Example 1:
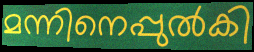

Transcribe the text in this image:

മന്നിനെപ്പുൽകി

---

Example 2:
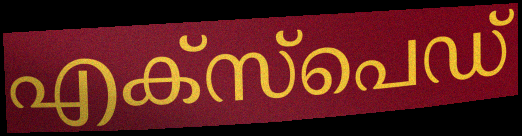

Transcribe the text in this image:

എക്സ്പെഡ്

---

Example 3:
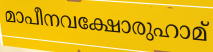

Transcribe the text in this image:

മാപീനവക്ഷോരുഹാമ്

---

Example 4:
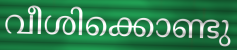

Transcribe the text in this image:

വീശിക്കൊണ്ടു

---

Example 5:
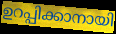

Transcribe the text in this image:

ഉറപ്പിക്കാനായി